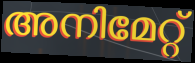
അനിമേറ്റ്